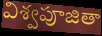
విశ్వపూజితా